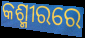
କଶ୍ମୀରରେ